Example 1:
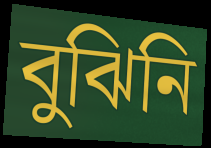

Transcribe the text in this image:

বুঝিনি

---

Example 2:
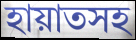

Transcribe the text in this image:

হায়াতসহ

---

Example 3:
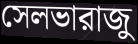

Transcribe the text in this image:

সেলভারাজু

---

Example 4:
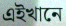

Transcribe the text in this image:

এইখানে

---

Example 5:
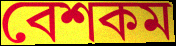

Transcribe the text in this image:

বেশকম